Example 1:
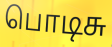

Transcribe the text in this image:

பொடிசு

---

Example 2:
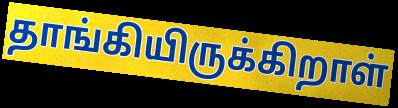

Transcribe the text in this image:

தாங்கியிருக்கிறாள்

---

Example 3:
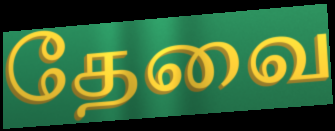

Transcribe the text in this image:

தேவை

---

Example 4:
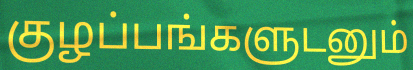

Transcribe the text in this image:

குழப்பங்களுடனும்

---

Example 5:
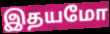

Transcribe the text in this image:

இதயமோ